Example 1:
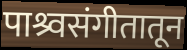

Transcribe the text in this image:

पाश्र्वसंगीतातून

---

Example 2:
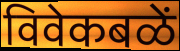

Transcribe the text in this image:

विवेकबळें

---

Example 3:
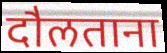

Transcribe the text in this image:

दौलताना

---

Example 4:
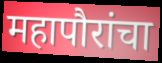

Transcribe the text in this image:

महापौरांचा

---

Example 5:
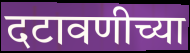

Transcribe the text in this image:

दटावणीच्या